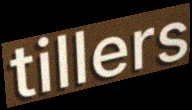
tillers